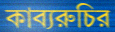
কাব্যরুচির